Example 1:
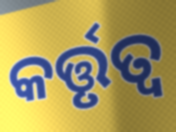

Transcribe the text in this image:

କର୍ତ୍ତୃତ୍ୱ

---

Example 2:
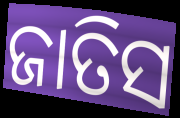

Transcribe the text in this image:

ଜାତିସ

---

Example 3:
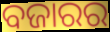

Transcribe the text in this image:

ବଜାରର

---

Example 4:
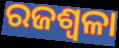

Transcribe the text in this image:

ରଜଶ୍ୱଳା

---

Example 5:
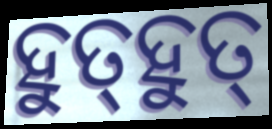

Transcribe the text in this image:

ହୁତ୍‍ହୁତ୍